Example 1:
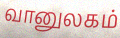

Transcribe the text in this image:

வானுலகம்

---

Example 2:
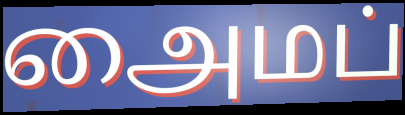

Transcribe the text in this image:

அைமப்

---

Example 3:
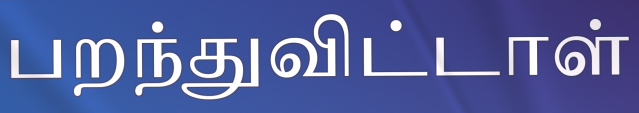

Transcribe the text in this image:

பறந்துவிட்டாள்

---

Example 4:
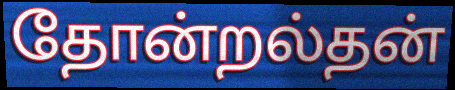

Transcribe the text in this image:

தோன்றல்தன்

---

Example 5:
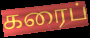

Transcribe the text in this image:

கரைப்